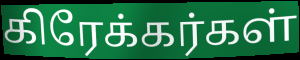
கிரேக்கர்கள்